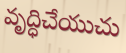
వృద్ధిచేయుచు